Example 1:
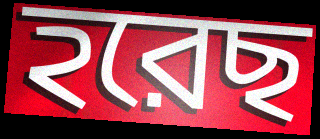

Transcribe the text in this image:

হরেছ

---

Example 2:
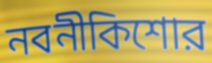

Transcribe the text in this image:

নবনীকিশোর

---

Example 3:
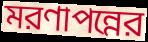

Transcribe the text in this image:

মরণাপন্নের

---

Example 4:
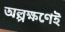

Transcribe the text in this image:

অল্পক্ষণেই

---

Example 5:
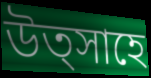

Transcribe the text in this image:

উত্সাহে